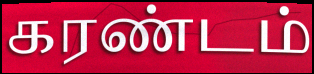
கரண்டம்